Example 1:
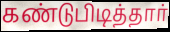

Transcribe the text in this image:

கண்டுபிடித்தார்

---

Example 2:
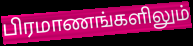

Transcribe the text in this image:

பிரமாணங்களிலும்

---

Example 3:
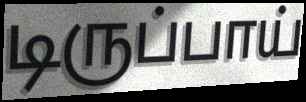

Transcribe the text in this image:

டிருப்பாய்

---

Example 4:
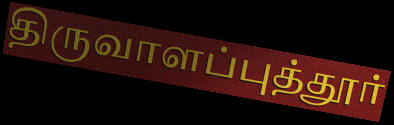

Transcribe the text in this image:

திருவாளப்புத்தூர்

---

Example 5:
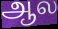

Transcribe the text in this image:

ஆல